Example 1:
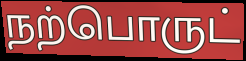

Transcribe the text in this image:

நற்பொருட்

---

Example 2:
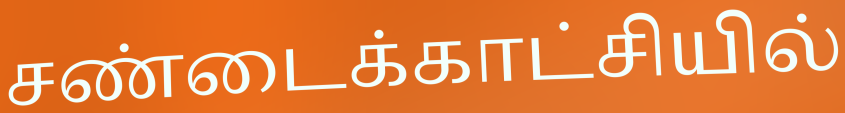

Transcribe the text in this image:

சண்டைக்காட்சியில்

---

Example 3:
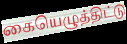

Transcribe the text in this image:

கையெழுத்திட்டு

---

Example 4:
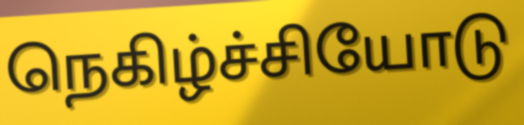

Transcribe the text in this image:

நெகிழ்ச்சியோடு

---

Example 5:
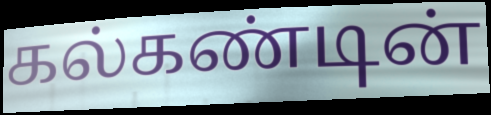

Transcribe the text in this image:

கல்கண்டின்